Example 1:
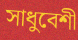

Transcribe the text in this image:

সাধুবেশী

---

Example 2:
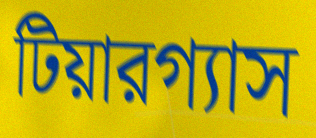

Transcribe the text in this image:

টিয়ারগ্যাস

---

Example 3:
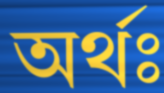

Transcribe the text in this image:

অর্থঃ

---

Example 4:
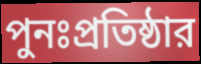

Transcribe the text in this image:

পুনঃপ্রতিষ্ঠার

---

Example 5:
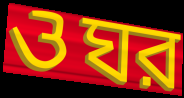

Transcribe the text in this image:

ওঘর